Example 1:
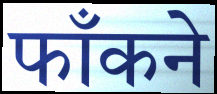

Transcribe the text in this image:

फाँकने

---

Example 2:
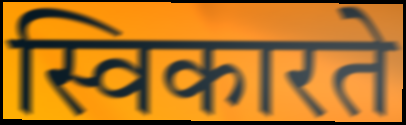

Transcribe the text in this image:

स्विकारते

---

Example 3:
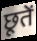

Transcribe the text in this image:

छूतें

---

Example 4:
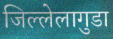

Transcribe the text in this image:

जिल्लेलागुडा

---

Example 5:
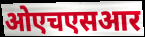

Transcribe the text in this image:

ओएचएसआर